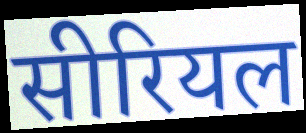
सीरियल